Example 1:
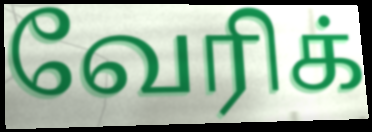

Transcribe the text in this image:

வேரிக்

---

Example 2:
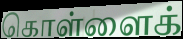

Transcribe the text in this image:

கொள்ளைக்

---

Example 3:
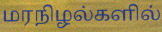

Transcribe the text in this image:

மரநிழல்களில்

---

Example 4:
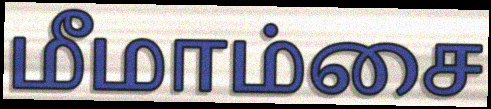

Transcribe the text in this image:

மீமாம்சை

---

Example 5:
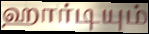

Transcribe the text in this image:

ஹார்டியும்